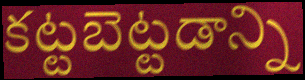
కట్టబెట్టడాన్ని